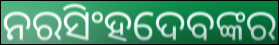
ନରସିଂହଦେବଙ୍କର